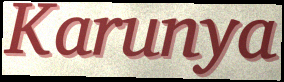
Karunya